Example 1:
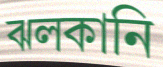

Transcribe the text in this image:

ঝলকানি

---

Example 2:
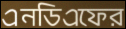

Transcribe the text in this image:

এনডিএফের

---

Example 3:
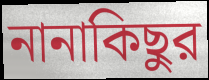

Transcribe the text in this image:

নানাকিছুর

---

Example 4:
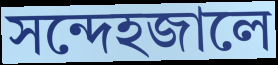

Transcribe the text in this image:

সন্দেহজালে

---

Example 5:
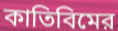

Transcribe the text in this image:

কাতিবিমের